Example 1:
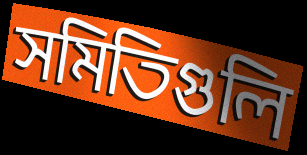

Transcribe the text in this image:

সমিতিগুলি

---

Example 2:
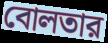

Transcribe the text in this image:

বোলতার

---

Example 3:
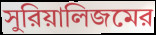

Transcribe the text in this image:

সুরিয়ালিজমের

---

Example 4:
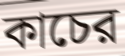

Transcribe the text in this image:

কাচের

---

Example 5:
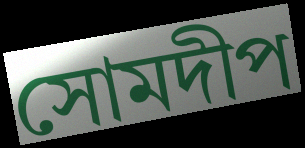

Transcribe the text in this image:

সোমদীপ